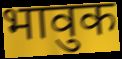
भावुक